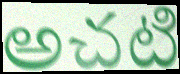
అచటి